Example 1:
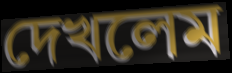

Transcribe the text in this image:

দেখলেম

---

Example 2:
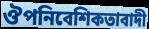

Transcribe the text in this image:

ঔপনিবেশিকতাবাদী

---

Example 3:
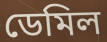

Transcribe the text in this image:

ডেমিল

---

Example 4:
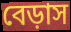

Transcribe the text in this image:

বেড়াস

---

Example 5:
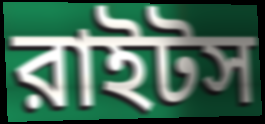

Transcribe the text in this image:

রাইটস